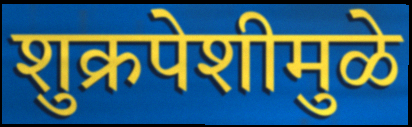
शुक्रपेशीमुळे